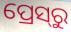
ପ୍ରେସ୍‌ରୁ